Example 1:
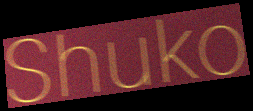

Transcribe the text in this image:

Shuko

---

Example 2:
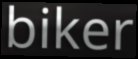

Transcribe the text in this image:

biker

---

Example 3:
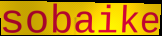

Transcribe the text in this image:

sobaike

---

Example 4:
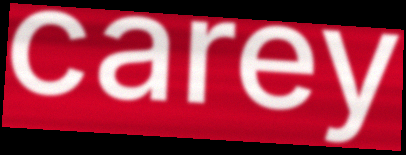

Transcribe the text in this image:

carey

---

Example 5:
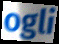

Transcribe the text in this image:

ogli